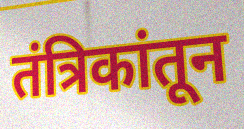
तंत्रिकांतून